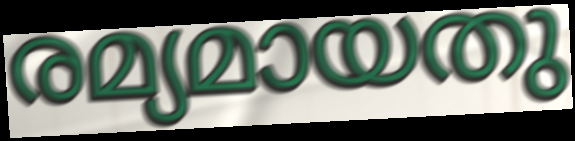
രമ്യമായതു